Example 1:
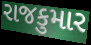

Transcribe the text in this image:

રાજકુમાર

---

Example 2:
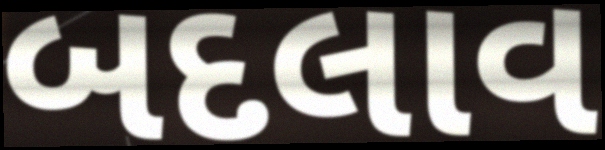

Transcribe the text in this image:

બદલાવ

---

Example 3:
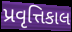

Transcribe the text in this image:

પ્રવૃત્તિકાલ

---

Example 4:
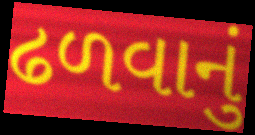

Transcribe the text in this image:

ઢળવાનું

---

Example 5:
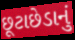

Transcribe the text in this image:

છૂટાછેડાનું